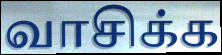
வாசிக்க